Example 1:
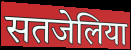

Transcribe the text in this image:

सतजेलिया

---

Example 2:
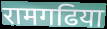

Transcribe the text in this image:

रामगढिया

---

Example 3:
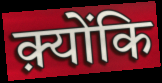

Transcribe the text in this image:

क़्योंकि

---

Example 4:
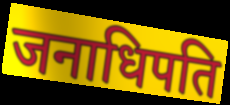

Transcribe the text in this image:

जनाधिपति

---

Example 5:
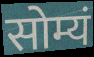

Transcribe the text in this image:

सोम्यं